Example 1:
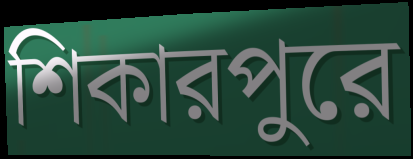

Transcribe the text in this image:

শিকারপুরে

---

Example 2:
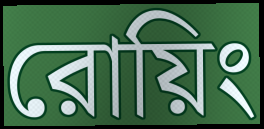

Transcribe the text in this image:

রোয়িং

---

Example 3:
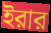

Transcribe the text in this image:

ইরার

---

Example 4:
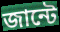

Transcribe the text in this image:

জান্টে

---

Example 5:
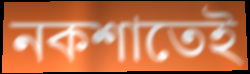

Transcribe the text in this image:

নকশাতেই